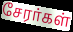
சேரர்கள்